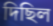
দিছিল